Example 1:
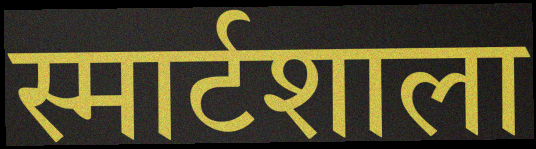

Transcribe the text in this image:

स्मार्टशाला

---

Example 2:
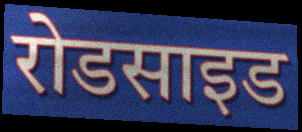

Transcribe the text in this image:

रोडसाइड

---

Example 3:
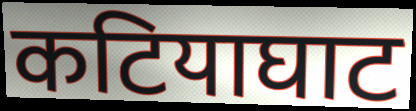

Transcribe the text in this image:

कटियाघाट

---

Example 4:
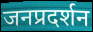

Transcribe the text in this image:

जनप्रदर्शन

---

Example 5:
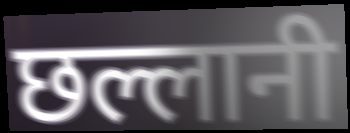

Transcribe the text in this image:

छल्लानी